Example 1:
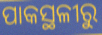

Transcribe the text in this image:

ପାକସ୍ଥଳୀରୁ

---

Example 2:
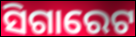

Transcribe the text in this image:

ସିଗାରେଟ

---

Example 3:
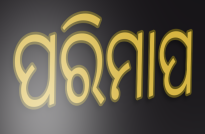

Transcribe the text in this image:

ପରିମାପ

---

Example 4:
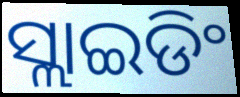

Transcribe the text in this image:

ସ୍ଲାଇଡିଂ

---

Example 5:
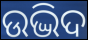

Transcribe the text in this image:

ଉଦ୍ଭିଦ